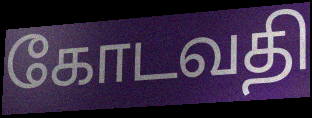
கோடவதி